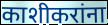
काशीकरांना